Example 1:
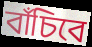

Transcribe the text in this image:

বাঁচিবে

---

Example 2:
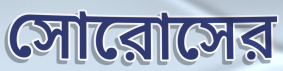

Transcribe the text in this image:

সোরোসের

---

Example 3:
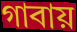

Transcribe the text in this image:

গাবায়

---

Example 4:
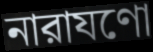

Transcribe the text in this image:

নারাযণো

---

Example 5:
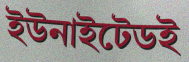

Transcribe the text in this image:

ইউনাইটেডই